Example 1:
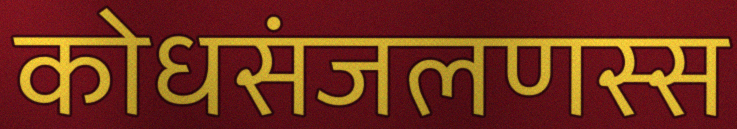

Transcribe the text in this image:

कोधसंजलणस्स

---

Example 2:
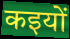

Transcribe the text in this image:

कइयों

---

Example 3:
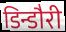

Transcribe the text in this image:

डिन्डौरी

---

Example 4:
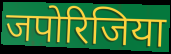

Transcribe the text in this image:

जपोरिजिया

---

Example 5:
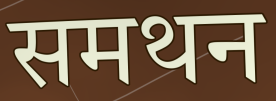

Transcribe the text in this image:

समथन